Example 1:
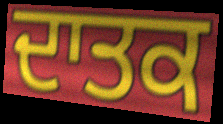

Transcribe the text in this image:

ਦਾਤਕ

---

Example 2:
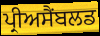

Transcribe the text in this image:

ਪ੍ਰੀਅਸੈਂਬਲਡ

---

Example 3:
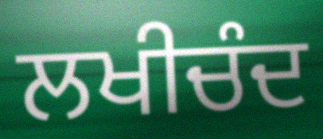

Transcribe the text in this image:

ਲਖੀਚੰਦ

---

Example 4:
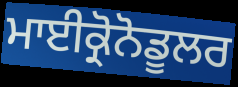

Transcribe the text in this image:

ਮਾਈਕ੍ਰੋਨੋਡੂਲਰ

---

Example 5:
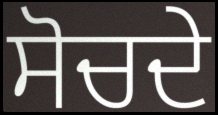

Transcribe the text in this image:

ਸੋਚਦੇ